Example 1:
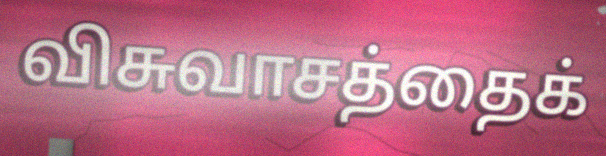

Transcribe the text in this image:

விசுவாசத்தைக்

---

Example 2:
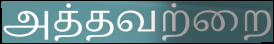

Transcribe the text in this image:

அத்தவற்றை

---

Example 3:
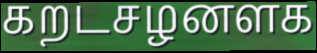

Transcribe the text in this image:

கறடசழனளக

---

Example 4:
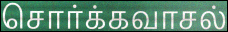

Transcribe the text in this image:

சொர்க்கவாசல்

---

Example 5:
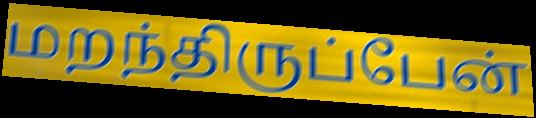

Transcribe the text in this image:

மறந்திருப்பேன்